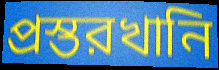
প্রস্তরখানি